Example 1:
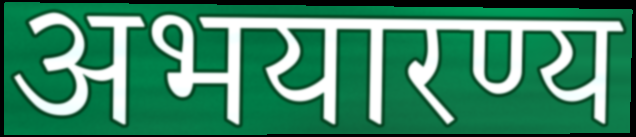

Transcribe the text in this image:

अभयारण्य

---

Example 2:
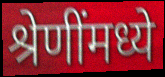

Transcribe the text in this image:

श्रेणींमध्ये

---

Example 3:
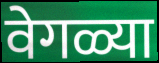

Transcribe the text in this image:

वेगळ्या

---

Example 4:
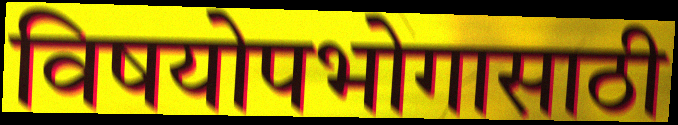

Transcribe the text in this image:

विषयोपभोगासाठी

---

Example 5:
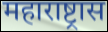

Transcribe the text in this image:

महाराष्ट्रास